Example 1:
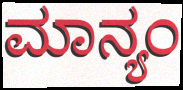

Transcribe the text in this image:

ಮಾನ್ಯಂ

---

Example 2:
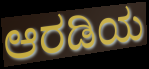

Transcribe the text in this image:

ಆರಡಿಯ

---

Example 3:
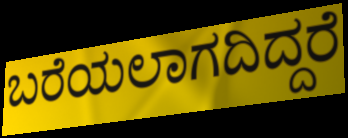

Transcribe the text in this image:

ಬರೆಯಲಾಗದಿದ್ದರೆ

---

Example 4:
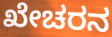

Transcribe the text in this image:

ಖೇಚರನ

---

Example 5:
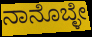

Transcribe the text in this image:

ನಾನೊಬ್ಳೇ